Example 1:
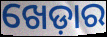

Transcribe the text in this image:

ଖେଡ଼ାର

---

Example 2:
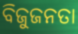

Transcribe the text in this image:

ବିଜୁଜନତା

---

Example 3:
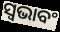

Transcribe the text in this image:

ସ୍ଵଭାବଂ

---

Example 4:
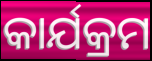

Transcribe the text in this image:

କାର୍ଯକ୍ରମ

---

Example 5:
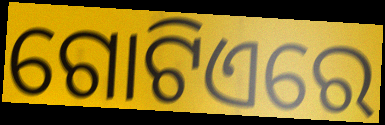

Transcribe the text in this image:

ଗୋଟିଏରେ